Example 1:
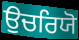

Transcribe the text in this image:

ਉਚਰਿਯੋ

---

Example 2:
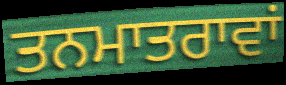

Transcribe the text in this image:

ਤਨਮਾਤਰਾਵਾਂ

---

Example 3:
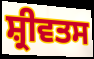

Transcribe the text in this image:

ਸ਼੍ਰੀਵਤਸ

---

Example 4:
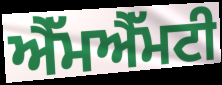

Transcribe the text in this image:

ਐੱਮਐੱਮਟੀ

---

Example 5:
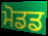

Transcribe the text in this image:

ਮੋਡਡ